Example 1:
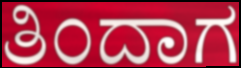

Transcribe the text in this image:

ತಿಂದಾಗ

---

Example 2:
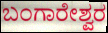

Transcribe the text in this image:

ಬಂಗಾರೇಶ್ವರ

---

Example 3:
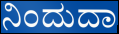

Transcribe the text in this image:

ನಿಂದುದಾ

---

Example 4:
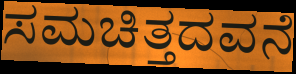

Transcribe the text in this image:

ಸಮಚಿತ್ತದವನೆ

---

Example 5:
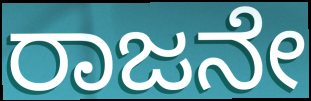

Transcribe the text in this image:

ರಾಜನೇ